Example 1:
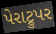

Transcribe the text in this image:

પેરાટ્રુપર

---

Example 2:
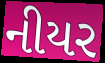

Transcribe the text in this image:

નીયર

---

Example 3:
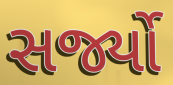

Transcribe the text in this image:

સર્જ્યો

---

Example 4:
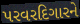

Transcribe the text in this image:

પરવરદિગારને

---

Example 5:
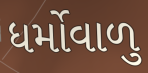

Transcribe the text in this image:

ધર્મોવાળુ